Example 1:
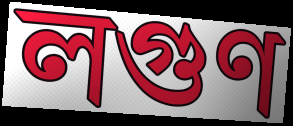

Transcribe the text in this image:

লগুণ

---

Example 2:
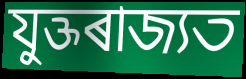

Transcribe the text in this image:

যুক্তৰাজ্যত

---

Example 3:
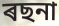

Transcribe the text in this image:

ৰছনা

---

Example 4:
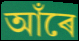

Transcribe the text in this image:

আঁৰে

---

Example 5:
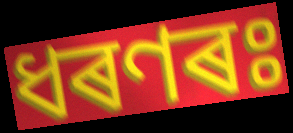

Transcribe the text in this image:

ধৰণৰঃ